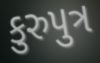
કુરુપુત્ર